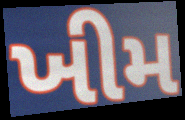
ખીમ